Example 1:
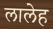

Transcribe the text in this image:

लालेह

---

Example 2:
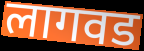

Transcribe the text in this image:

लागवड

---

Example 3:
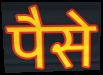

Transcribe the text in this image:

पैसे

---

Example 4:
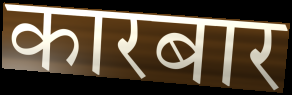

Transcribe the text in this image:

कारबार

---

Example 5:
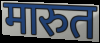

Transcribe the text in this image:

मारुत